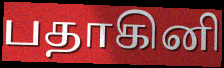
பதாகினி